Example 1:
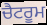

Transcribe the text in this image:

ਚੈਟਰੂਮ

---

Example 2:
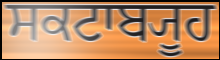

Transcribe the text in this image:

ਸਕਟਾਬ੍ਯੂਹ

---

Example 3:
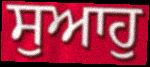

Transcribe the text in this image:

ਸੁਆਹੁ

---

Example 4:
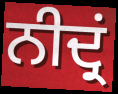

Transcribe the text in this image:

ਨੀਦ੍ਰਂ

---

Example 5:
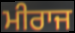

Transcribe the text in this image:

ਮੀਰਾਜ